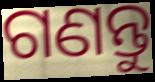
ଗଣନ୍ତୁ